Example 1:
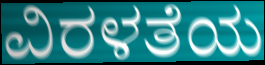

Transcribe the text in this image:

ವಿರಳತೆಯ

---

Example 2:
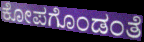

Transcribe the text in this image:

ಕೋಪಗೊಂಡಂತೆ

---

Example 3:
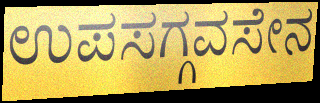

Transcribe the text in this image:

ಉಪಸಗ್ಗವಸೇನ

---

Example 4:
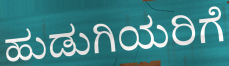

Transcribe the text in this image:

ಹುಡುಗಿಯರಿಗೆ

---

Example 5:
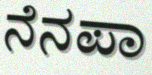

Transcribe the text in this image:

ನೆನಪಾ